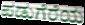
ಪಡುಗೆರೆಯ